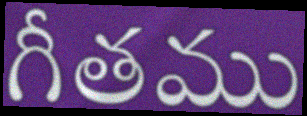
గీతము